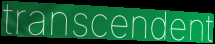
transcendent